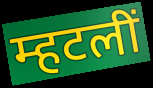
म्हटलीं